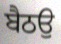
ਬੈਠਉ